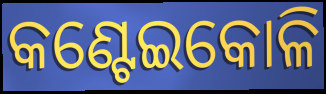
କଣ୍ଟେଇକୋଳି